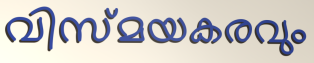
വിസ്മയകരവും